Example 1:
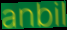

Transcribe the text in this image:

anbil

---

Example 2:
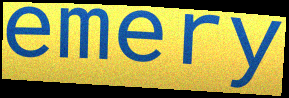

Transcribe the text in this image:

emery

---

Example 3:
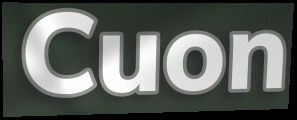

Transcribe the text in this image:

Cuon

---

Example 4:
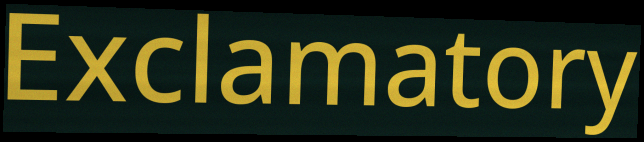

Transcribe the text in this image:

Exclamatory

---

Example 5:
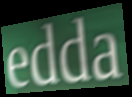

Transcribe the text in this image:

edda